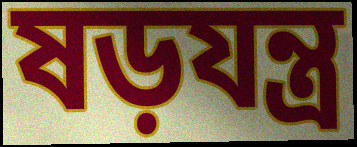
ষড়যন্ত্র